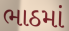
ભાઠમાં